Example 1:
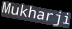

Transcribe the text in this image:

Mukharji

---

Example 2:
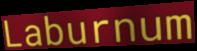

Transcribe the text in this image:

Laburnum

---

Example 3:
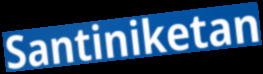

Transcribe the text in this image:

Santiniketan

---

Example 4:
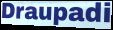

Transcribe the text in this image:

Draupadi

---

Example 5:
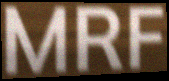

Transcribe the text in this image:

MRF